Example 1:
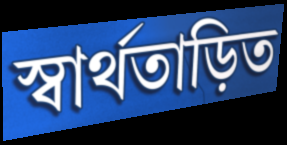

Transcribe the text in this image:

স্বার্থতাড়িত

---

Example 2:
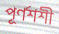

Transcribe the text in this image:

পূর্ণশশী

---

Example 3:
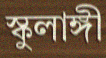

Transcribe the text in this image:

স্কুলাঙ্গী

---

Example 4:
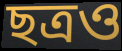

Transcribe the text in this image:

ছত্রও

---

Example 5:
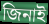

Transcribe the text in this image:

জিনাই